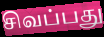
சிவப்பது